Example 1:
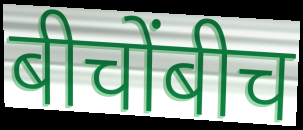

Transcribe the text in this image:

बीचोंबीच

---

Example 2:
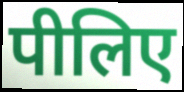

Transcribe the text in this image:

पीलिए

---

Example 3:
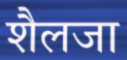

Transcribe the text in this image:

शैलजा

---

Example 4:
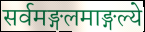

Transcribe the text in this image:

सर्वमङ्गलमाङ्गल्ये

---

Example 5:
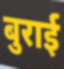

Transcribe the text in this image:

बुराई